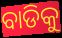
ବାଡିକୁ